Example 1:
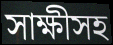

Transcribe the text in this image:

সাক্ষীসহ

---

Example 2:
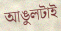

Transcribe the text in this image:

আঙুলটাই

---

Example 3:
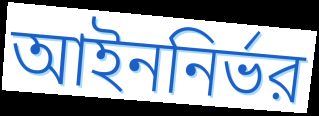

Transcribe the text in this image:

আইননির্ভর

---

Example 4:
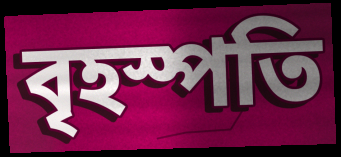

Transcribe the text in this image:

বৃহস্পতি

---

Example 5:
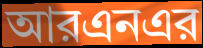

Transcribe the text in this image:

আরএনএর